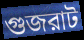
গুজরাট